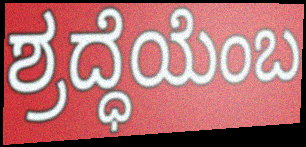
ಶ್ರದ್ಧೆಯೆಂಬ